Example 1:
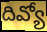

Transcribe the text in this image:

దివ్యో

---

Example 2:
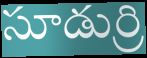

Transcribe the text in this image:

సూడుర్రి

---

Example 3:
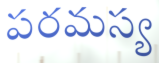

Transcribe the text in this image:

పరమస్య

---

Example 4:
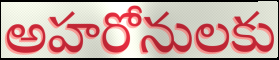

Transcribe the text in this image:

అహరోనులకు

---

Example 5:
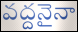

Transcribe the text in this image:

వద్దనైనా